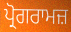
ਪ੍ਰੋਗਰਾਮਜ਼